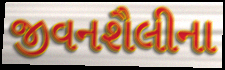
જીવનશૈલીના